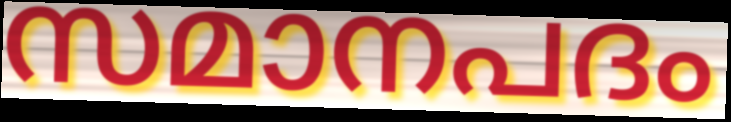
സമാനപദം